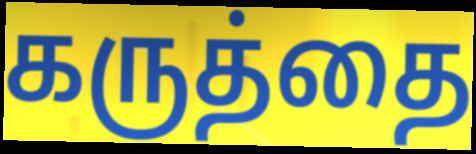
கருத்தை